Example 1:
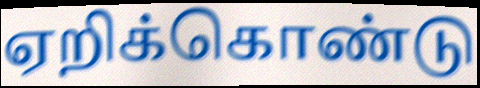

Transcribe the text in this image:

ஏறிக்கொண்டு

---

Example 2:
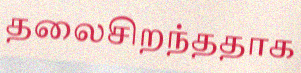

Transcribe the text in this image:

தலைசிறந்ததாக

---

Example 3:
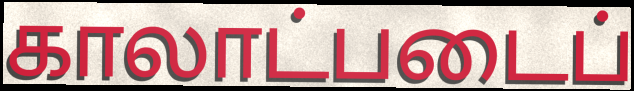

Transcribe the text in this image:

காலாட்படைப்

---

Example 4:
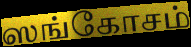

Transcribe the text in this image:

ஸங்கோசம்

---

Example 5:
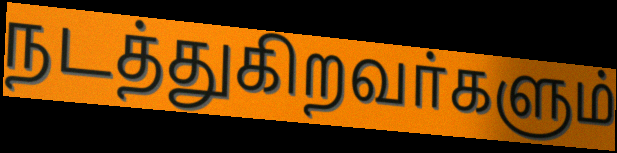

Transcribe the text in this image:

நடத்துகிறவர்களும்